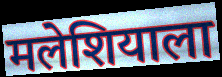
मलेशियाला